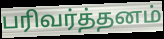
பரிவர்த்தனம்